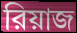
রিয়াজ